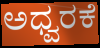
ಅಧ್ವರಕೆ